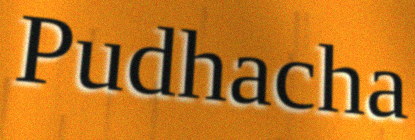
Pudhacha